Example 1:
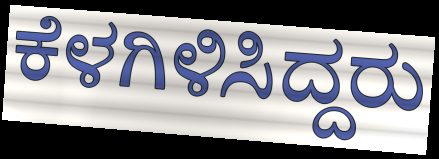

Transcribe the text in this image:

ಕೆಳಗಿಳಿಸಿದ್ದರು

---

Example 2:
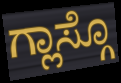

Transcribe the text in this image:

ಗ್ಲಾಸ್ಗೊ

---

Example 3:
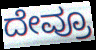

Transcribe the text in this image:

ದೇವ್ರೂ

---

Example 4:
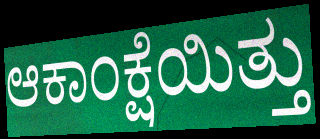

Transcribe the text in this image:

ಆಕಾಂಕ್ಷೆಯಿತ್ತು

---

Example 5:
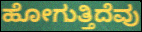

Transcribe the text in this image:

ಹೋಗುತ್ತಿದೆವು